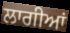
ਲਾਗੀਆਂ